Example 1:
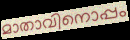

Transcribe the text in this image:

മാതാവിനൊപ്പം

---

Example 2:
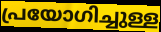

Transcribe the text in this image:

പ്രയോഗിച്ചുള്ള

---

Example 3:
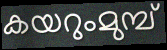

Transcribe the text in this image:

കയറുംമുമ്പ്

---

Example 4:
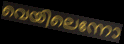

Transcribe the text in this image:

വെയിലെന്നോ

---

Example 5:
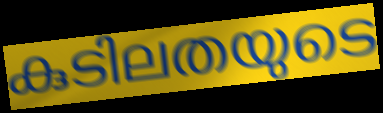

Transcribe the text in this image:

കുടിലതയുടെ